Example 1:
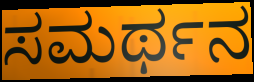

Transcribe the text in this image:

ಸಮರ್ಥನ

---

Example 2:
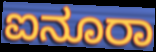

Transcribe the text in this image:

ಐನೂರಾ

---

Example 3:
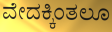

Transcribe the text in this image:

ವೇದಕ್ಕಿಂತಲೂ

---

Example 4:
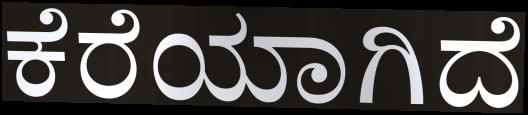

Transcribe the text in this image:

ಕೆರೆಯಾಗಿದೆ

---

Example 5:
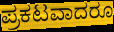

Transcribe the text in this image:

ಪ್ರಕಟವಾದರೂ